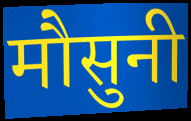
मौसुनी